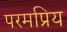
परमप्रिय